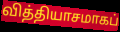
வித்தியாசமாகப்